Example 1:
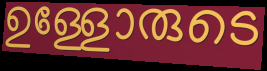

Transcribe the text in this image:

ഉള്ളോരുടെ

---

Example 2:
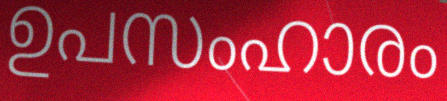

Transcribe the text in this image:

ഉപസംഹാരം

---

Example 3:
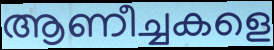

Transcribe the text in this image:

ആണീച്ചകളെ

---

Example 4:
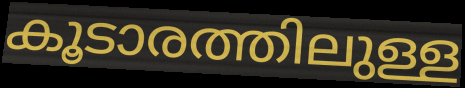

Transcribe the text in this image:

കൂടാരത്തിലുള്ള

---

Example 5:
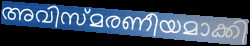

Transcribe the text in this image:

അവിസ്മരണീയമാക്കി